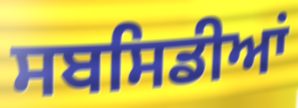
ਸਬਸਿਡੀਆਂ